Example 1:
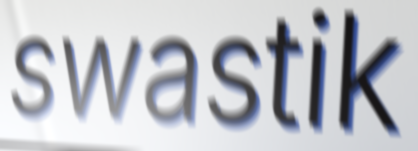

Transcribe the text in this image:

swastik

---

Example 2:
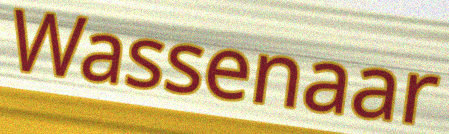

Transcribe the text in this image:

Wassenaar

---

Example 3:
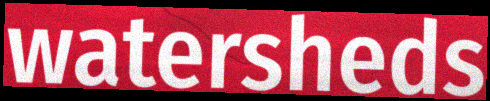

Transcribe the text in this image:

watersheds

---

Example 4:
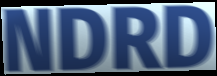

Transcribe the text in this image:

NDRD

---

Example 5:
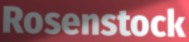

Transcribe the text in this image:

Rosenstock